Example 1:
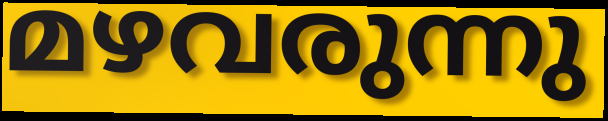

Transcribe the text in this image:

മഴവരുന്നു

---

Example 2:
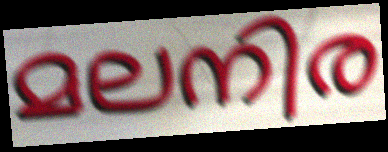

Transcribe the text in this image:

മലനിര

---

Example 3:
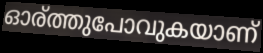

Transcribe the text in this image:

ഓര്ത്തുപോവുകയാണ്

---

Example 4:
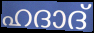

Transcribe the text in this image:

ഹദാദ്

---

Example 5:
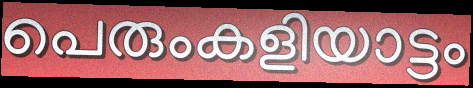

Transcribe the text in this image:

പെരുംകളിയാട്ടം